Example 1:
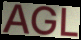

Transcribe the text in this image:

AGL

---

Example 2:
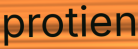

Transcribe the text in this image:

protien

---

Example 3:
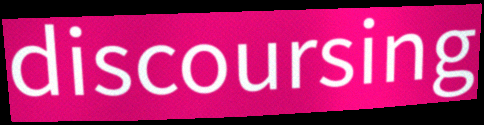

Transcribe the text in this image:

discoursing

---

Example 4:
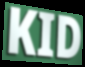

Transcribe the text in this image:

KID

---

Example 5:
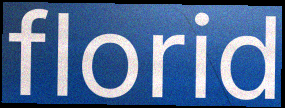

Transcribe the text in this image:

florid